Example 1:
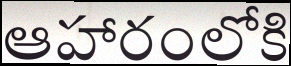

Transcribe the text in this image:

ఆహారంలోకి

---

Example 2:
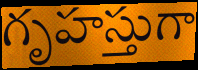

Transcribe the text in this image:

గృహస్తుగా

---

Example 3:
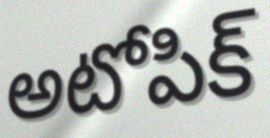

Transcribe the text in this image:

అటోపిక్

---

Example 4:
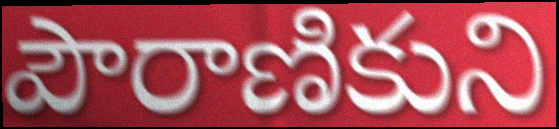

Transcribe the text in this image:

పౌరాణికుని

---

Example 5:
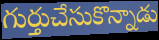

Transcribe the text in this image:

గుర్తుచేసుకొన్నాడు